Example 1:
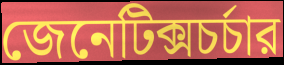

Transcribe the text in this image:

জেনেটিক্সচর্চার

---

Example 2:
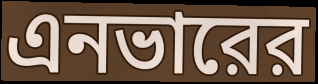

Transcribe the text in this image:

এনভারের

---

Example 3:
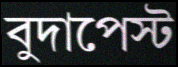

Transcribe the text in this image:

বুদাপেস্ট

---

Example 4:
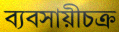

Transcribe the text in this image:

ব্যবসায়ীচক্র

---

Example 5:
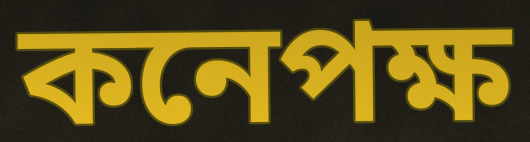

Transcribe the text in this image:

কনেপক্ষ